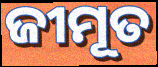
ଜୀମୂତ